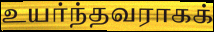
உயர்ந்தவராகக்